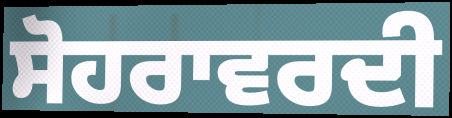
ਸੋਹਰਾਵਰਦੀ